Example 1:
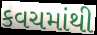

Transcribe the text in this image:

કવચમાંથી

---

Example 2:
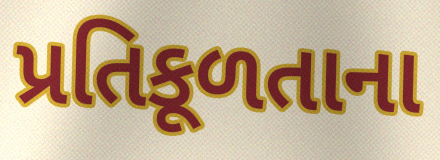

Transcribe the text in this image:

પ્રતિકૂળતાના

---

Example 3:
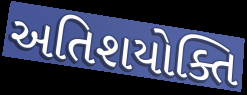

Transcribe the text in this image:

અતિશયોક્તિ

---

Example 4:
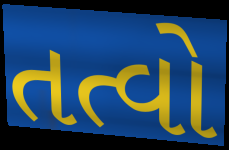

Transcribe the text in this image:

તત્વો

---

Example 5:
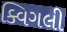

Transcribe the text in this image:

ક્વિગલી